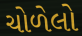
ચોળેલો